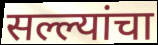
सल्ल्यांचा